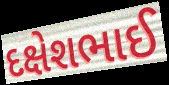
દક્ષેશભાઈ